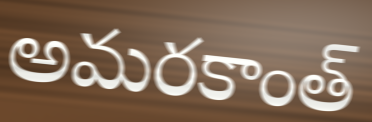
అమరకాంత్